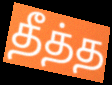
தீத்த